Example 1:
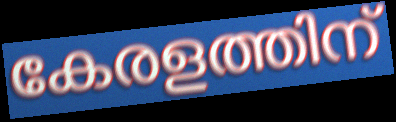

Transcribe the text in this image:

കേരളത്തിന്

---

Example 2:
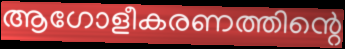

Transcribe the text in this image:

ആഗോളീകരണത്തിന്റെ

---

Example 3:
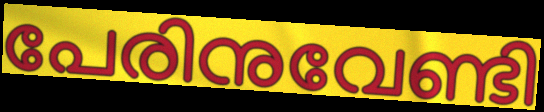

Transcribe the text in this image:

പേരിനുവേണ്ടി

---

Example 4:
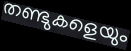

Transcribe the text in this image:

തണ്ടുകളെയും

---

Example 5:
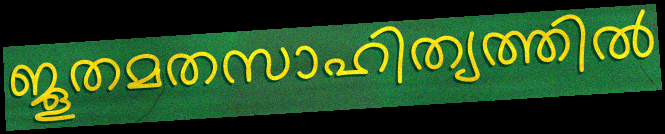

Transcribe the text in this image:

ജൂതമതസാഹിത്യത്തിൽ